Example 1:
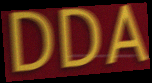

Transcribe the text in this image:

DDA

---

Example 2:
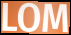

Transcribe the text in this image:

LOM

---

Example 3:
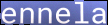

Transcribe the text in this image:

ennela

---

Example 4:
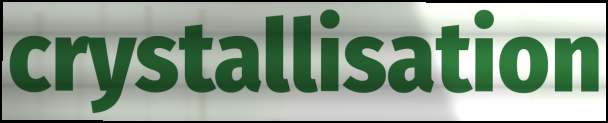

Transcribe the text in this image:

crystallisation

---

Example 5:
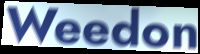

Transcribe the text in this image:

Weedon